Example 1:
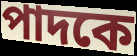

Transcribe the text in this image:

পাদকে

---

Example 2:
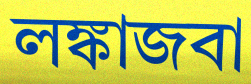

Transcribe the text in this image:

লঙ্কাজবা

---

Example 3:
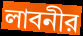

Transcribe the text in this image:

লাবনীর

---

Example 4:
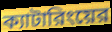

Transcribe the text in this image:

ক্যাটারিংয়ের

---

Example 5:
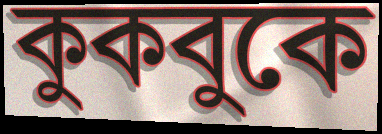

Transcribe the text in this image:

কুকবুকে